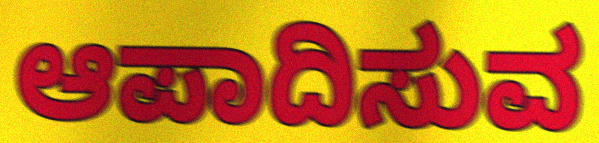
ಆಪಾದಿಸುವ